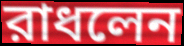
রাধলেন